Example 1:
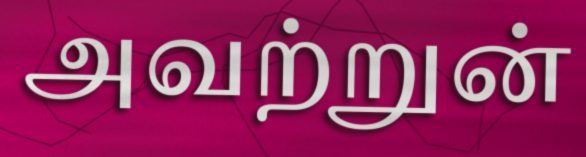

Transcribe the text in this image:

அவற்றுன்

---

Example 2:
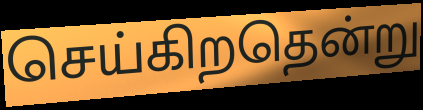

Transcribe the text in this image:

செய்கிறதென்று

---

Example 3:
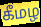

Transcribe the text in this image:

கீமழ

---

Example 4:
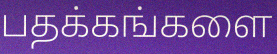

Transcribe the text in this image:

பதக்கங்களை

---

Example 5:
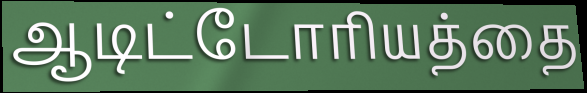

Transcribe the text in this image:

ஆடிட்டோரியத்தை